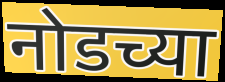
नोडच्या